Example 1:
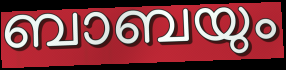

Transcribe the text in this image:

ബാബയും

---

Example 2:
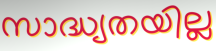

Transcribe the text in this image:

സാദ്ധ്യതയില്ല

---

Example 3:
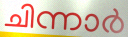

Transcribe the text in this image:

ചിന്നാർ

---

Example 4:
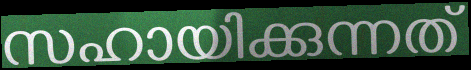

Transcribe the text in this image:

സഹായിക്കുന്നത്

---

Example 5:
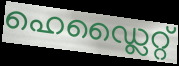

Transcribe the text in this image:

ഹെഡ്ലൈറ്റ്